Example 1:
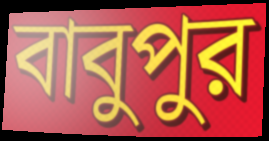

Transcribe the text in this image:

বাবুপুর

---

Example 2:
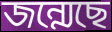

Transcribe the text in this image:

জন্মেছে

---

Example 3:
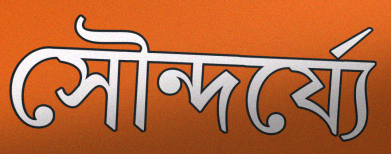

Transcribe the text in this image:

সৌন্দর্য্যে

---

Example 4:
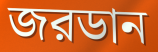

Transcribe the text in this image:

জরডান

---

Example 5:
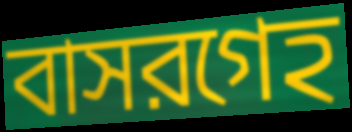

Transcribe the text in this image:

বাসরগেহ